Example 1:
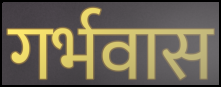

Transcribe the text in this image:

गर्भवास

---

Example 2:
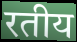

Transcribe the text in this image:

रतीय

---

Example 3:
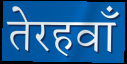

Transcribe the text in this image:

तेरहवाँ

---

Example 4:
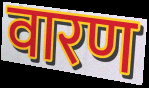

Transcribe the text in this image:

वारण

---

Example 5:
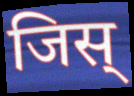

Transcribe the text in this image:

जिस्